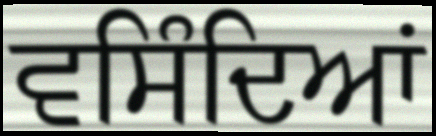
ਵਸਿੰਦਿਆਂ